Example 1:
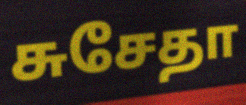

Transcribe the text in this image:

சுசேதா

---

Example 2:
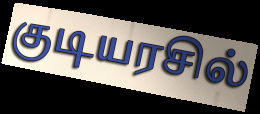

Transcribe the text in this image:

குடியரசில்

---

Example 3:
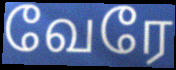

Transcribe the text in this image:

வேரே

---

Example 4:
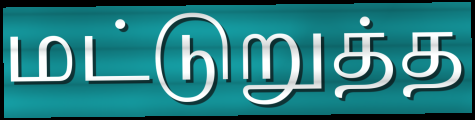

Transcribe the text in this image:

மட்டுறுத்த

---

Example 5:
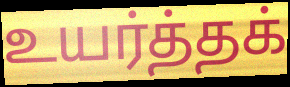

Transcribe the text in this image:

உயர்த்தக்